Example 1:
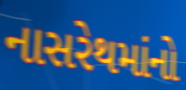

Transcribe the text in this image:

નાસરેથમાંનો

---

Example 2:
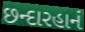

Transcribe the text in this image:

છન્દારહાનં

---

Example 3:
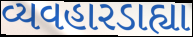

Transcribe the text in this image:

વ્યવહારડાહ્યા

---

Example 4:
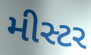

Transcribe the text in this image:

મીસ્ટર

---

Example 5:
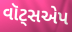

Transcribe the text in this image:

વૉટ્સએપ